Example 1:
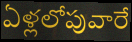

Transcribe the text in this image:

ఏళ్లలోపువారే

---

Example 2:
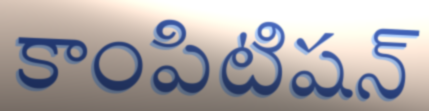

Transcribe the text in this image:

కాంపిటిషన్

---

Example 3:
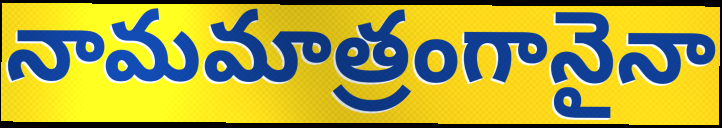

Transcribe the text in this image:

నామమాత్రంగానైనా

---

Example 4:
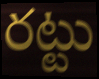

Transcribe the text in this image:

రట్టు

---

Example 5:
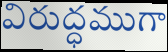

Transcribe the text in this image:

విరుద్ధముగా